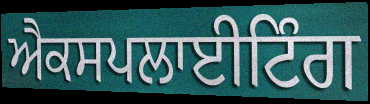
ਐਕਸਪਲਾਈਟਿੰਗ